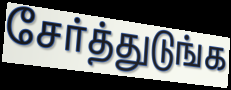
சேர்த்துடுங்க